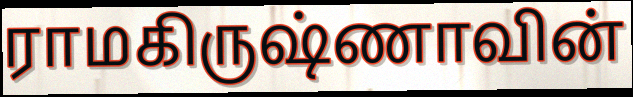
ராமகிருஷ்ணாவின்